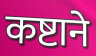
कष्टाने